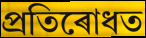
প্ৰতিৰোধত